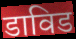
डाविड